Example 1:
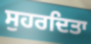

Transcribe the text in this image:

ਸੁਹਰਦਿਤਾ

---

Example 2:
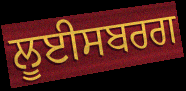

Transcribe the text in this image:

ਲੂਈਸਬਰਗ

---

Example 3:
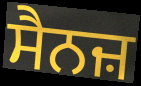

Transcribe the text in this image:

ਸੈਨਜ਼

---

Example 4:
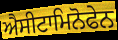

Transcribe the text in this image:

ਐਸੀਟਾਮਿਨੋਫੇਨ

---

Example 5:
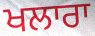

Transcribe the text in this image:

ਖਲਾਰਾ